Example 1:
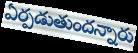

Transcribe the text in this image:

ఏర్పడుతుందన్నారు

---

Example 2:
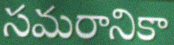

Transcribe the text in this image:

సమరానికా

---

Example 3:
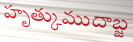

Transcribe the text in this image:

హృత్కుముదాబ్జ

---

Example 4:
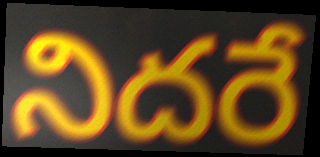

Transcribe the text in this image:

నిదరే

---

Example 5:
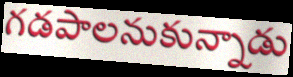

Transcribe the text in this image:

గడపాలనుకున్నాడు